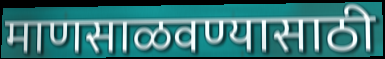
माणसाळवण्यासाठी